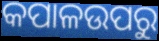
କପାଳଉପରୁ